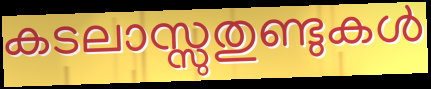
കടലാസ്സുതുണ്ടുകൾ